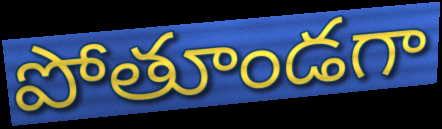
పోతూండగా